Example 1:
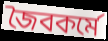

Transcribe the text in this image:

জৈবকর্মে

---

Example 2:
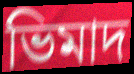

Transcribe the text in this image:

ভিমাদ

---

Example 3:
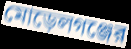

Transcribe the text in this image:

মোড়েলগঞ্জের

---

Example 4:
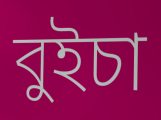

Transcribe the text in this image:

বুইচা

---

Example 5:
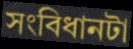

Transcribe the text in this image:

সংবিধানটা